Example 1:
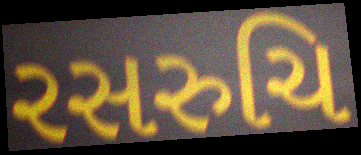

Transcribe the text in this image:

રસરુચિ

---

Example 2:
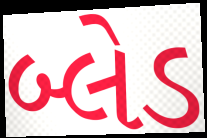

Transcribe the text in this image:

બ્લેડ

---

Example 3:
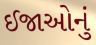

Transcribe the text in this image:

ઈજાઓનું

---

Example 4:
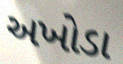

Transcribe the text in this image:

અખોડા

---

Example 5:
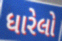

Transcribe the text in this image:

ધારેલો